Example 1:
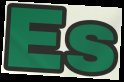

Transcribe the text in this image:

Es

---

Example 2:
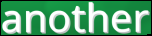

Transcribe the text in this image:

another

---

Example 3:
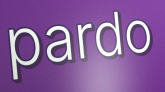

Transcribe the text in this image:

pardo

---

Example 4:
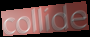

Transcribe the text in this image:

collide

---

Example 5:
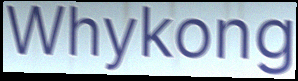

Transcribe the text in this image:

Whykong